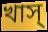
খাস্